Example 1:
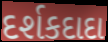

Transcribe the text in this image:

દર્શકદાદા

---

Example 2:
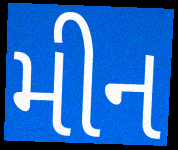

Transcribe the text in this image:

મીન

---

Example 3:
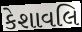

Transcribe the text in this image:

કેશાવલિ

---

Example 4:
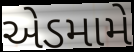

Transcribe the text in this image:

એડમામે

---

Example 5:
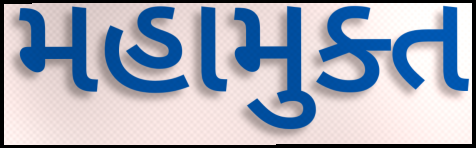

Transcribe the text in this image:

મહામુક્ત